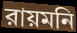
রায়মনি